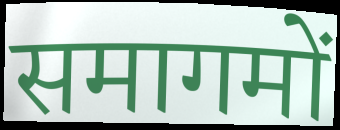
समागमों